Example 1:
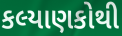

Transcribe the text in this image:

કલ્યાણકોથી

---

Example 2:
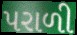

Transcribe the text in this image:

પરાળી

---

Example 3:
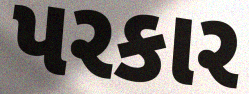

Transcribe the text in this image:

પરકાર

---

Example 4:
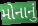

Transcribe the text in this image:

મોનાનું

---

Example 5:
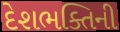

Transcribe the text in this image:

દેશભક્તિની